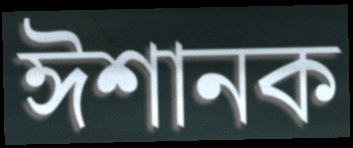
ঈশানক